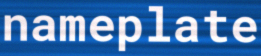
nameplate